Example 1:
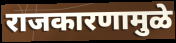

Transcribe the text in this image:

राजकारणामुळे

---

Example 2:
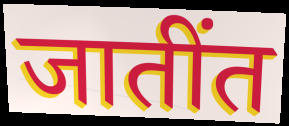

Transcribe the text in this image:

जातींत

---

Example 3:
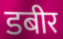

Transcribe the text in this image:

डबीर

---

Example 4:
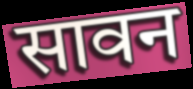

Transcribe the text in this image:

सावन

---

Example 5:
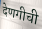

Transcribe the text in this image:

देणगीची